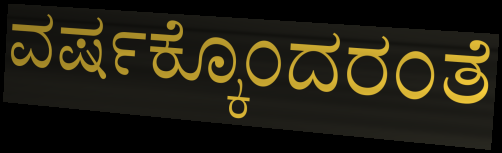
ವರ್ಷಕ್ಕೊಂದರಂತೆ